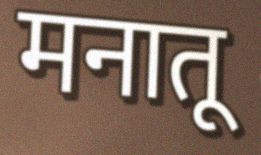
मनातू